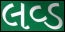
લવ્ડ